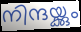
നിന്ദയ്ക്കും